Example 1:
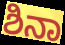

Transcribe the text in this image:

ಶಿನಾ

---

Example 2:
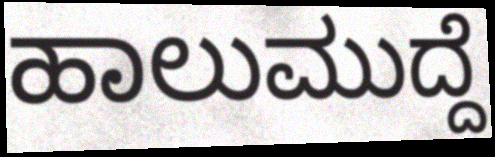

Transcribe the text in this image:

ಹಾಲುಮುದ್ದೆ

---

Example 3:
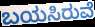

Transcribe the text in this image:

ಬಯಸಿರುವೆ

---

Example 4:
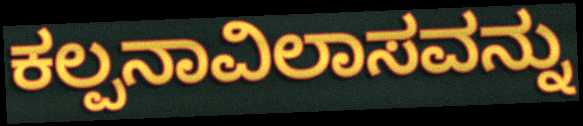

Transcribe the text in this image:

ಕಲ್ಪನಾವಿಲಾಸವನ್ನು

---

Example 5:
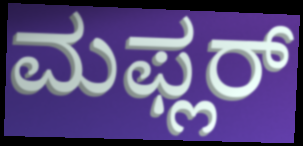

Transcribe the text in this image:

ಮಫ್ಲರ್